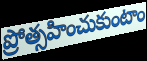
ప్రోత్సహించుకుంటాం